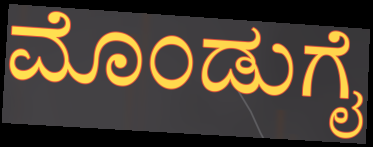
ಮೊಂಡುಗೈ